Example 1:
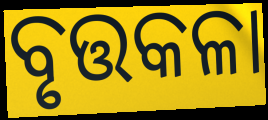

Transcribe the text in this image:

ବୃତ୍ତକଳା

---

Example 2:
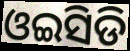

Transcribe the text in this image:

ଓଇସିଡି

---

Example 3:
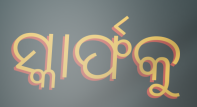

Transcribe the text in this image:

ସ୍କାର୍ଫକୁ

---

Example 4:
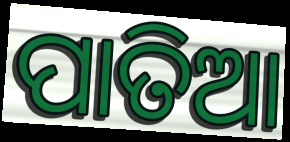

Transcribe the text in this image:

ପାତିଆ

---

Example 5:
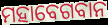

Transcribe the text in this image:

ମହାବେଗବାନ